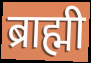
ब्राह्मी